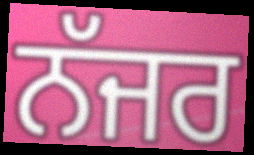
ਨੱਜਰ